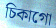
চিকাগো